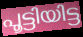
പൂട്ടിയിട്ട